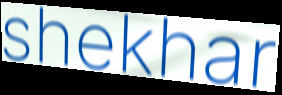
shekhar